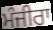
ਮੰਜੀਰਾ